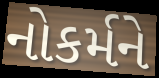
નોકર્મને